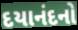
દયાનંદનો